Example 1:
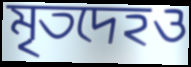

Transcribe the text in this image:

মৃতদেহও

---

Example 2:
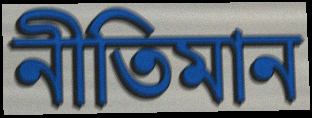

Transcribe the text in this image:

নীতিমান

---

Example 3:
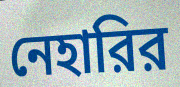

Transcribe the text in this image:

নেহারির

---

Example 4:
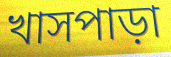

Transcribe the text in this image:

খাসপাড়া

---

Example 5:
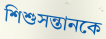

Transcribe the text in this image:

শিশুসন্তানকে